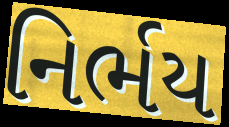
નિર્ભય